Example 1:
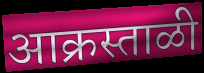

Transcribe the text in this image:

आक्रस्ताळी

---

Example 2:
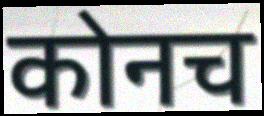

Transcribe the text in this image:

कोनच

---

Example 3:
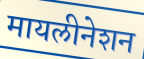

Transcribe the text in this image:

मायलीनेशन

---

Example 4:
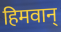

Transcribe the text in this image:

हिमवान्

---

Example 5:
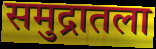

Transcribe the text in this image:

समुद्रातला